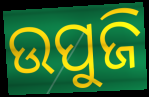
ଉପୁଜି